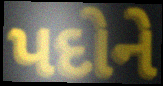
પદોને